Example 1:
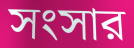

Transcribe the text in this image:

সংসার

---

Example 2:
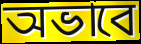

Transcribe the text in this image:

অভাবে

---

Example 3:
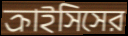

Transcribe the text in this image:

ক্রাইসিসের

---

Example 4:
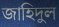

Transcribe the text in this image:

জাহিদুল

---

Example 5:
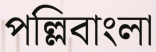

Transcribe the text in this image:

পল্লিবাংলা